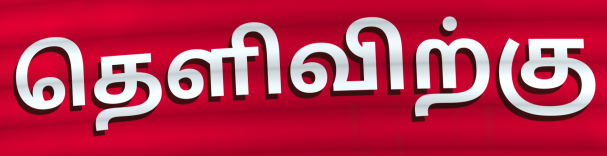
தெளிவிற்கு